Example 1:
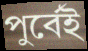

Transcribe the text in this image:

পুর্বেই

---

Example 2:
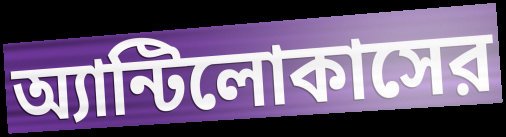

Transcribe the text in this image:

অ্যান্টিলোকাসের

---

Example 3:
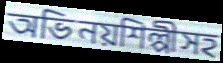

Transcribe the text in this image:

অভিনয়শিল্পীসহ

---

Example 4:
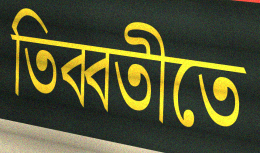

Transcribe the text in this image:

তিব্বতীতে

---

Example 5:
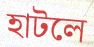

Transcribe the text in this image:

হাটলে